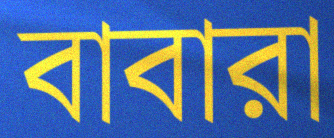
বাবারা